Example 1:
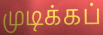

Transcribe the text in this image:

முடிக்கப்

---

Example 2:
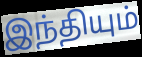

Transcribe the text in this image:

இந்தியும்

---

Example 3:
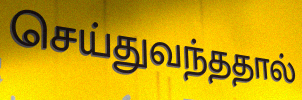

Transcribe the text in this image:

செய்துவந்ததால்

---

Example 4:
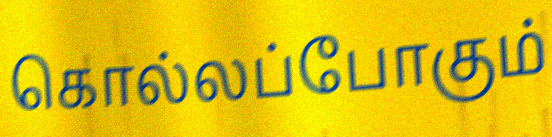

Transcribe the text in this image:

கொல்லப்போகும்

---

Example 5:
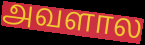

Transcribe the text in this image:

அவளால